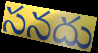
సనదు